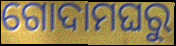
ଗୋଦାମଘରୁ